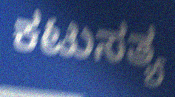
ಕಟುಸತ್ಯ